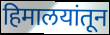
हिमालयांतून